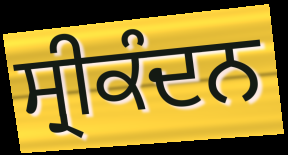
ਸ੍ਰੀਕੰਦਨ